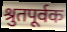
श्रुतपूर्वक